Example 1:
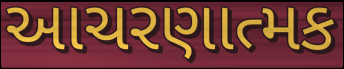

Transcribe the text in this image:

આચરણાત્મક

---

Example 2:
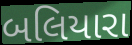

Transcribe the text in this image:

બલિયારા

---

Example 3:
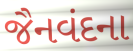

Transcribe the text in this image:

જૈનવંદના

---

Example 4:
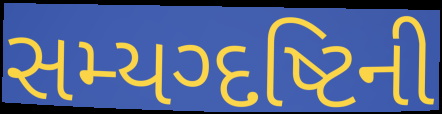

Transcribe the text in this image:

સમ્યગ્દષ્ટિની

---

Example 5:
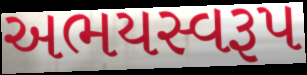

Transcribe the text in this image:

અભયસ્વરૂપ